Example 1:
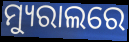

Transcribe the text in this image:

ମ୍ୟୁରାଲରେ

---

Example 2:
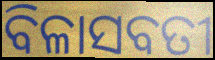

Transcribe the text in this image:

ବିଳାସବତୀ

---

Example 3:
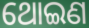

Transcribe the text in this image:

ଥୋଇଣ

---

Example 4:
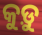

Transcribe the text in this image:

କୁଡ଼ୁ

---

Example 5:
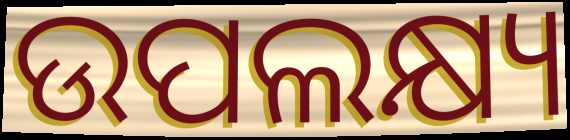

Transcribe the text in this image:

ଉପଲକ୍ଷ୍ୟ